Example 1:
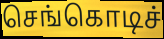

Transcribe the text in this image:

செங்கொடிச்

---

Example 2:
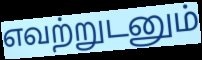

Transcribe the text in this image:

எவற்றுடனும்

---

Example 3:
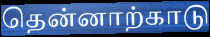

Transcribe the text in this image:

தென்னாற்காடு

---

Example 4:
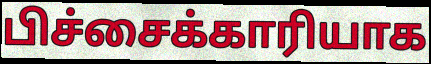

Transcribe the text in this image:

பிச்சைக்காரியாக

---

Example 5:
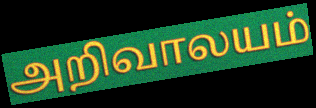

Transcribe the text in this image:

அறிவாலயம்